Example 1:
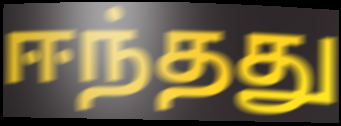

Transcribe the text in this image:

ஈந்தது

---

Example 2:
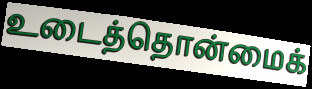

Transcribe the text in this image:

உடைத்தொன்மைக்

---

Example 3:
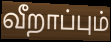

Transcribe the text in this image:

வீறாப்பும்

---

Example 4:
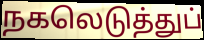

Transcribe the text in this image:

நகலெடுத்துப்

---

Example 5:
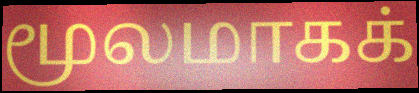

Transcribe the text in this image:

மூலமாகக்